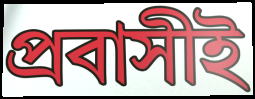
প্রবাসীই